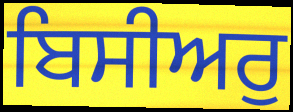
ਬਿਸੀਅਰੁ